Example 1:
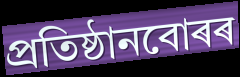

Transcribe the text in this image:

প্ৰতিষ্ঠানবোৰৰ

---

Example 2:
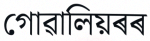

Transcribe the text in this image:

গোৱালিয়ৰৰ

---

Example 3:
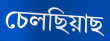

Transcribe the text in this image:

চেলছিয়াছ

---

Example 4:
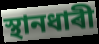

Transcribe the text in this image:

স্থানধাৰী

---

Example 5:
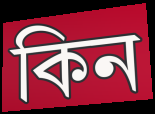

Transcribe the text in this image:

কিন